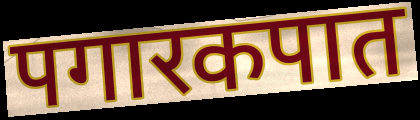
पगारकपात